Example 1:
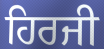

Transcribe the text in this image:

ਹਿਰਜੀ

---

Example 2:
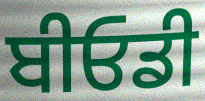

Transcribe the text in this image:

ਬੀਓਡੀ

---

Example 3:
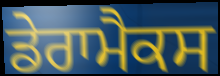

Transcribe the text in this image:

ਡੇਰਾਮੈਕਸ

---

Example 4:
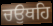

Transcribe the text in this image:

ਚਉਥਹਿ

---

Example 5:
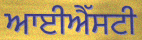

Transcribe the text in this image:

ਆਈਐੱਸਟੀ